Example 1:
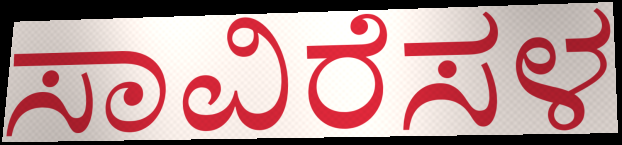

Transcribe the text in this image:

ಸಾವಿರೆಸಳ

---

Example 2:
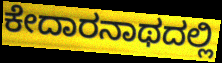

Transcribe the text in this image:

ಕೇದಾರನಾಥದಲ್ಲಿ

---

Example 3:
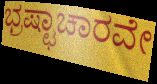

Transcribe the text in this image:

ಭ್ರಷ್ಟಾಚಾರವೇ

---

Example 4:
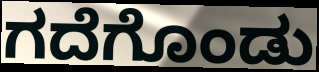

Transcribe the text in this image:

ಗದೆಗೊಂಡು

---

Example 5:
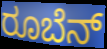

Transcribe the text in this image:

ರೂಬೆನ್